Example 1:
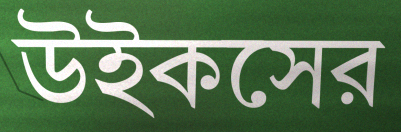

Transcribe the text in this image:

উইকসের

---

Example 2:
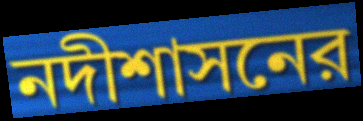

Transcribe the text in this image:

নদীশাসনের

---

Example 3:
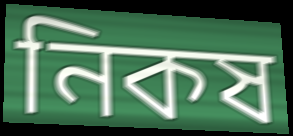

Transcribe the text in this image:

নিকষ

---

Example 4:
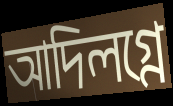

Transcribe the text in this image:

আদিলগ্নে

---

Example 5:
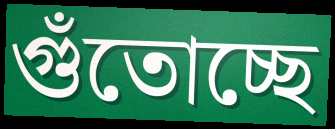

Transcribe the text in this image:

গুঁতোচ্ছে